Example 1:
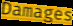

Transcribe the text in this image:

Damages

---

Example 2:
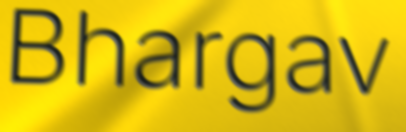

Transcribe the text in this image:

Bhargav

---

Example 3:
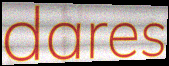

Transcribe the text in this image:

dares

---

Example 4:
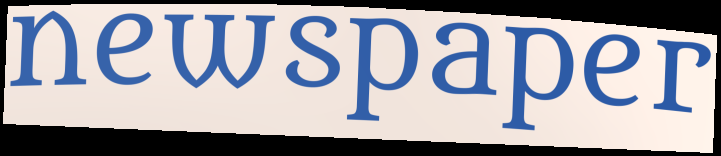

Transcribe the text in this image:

newspaper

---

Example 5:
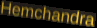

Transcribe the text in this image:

Hemchandra